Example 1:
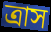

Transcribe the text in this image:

ত্রাস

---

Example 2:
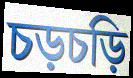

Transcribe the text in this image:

চড়চড়ি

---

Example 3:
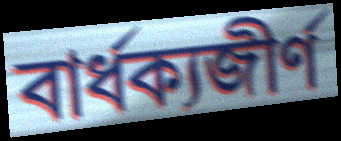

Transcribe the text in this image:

বার্ধক্যজীর্ণ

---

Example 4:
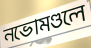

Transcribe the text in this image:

নভোমণ্ডলে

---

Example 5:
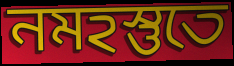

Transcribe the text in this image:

নমহস্তুতে